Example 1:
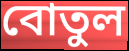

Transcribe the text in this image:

বোতুল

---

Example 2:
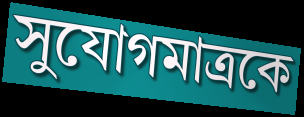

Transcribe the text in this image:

সুযোগমাত্রকে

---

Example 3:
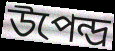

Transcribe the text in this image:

উপেন্দ্র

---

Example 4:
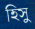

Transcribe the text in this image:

হিসু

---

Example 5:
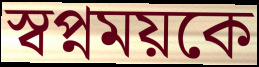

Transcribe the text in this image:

স্বপ্নময়কে